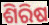
ଶିରିଷ